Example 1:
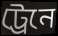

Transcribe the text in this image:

ট্রেনে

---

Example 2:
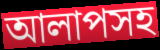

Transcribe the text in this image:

আলাপসহ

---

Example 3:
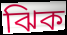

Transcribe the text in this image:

ঝিক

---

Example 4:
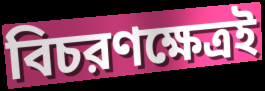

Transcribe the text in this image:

বিচরণক্ষেত্রই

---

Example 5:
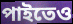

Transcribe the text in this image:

পাইতেও